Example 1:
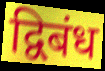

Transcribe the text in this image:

द्विबंध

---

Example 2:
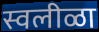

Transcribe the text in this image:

स्वलीळा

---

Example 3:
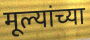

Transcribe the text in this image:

मूल्यांच्या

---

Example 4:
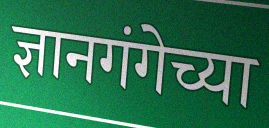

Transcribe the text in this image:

ज्ञानगंगेच्या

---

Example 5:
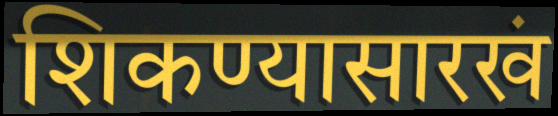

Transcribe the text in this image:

शिकण्यासारखं